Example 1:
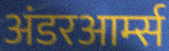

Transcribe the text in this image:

अंडरआर्म्‍स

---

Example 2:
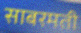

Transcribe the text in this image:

साबरमती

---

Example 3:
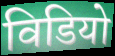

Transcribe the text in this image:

विडियो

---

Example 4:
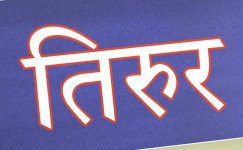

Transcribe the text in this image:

तिरुर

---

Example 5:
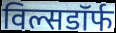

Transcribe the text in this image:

विल्सडॉर्फ